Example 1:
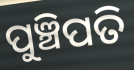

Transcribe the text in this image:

ପୁଞ୍ଚିପତି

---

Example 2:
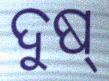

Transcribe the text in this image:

ଦୁଷ୍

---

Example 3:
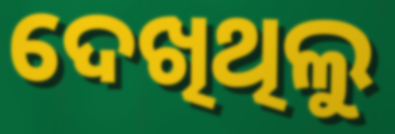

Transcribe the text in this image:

ଦେଖିଥିଲୁ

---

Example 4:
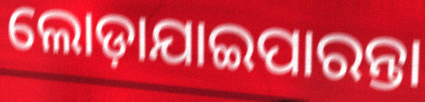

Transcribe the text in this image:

ଲୋଡ଼ାଯାଇପାରନ୍ତା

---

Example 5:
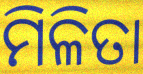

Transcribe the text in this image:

ମିଳିତା